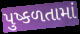
પુષ્કળતામાં